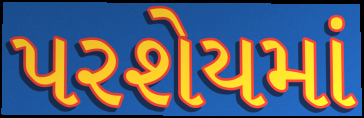
પરશેયમાં